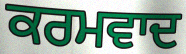
ਕਰਮਵਾਦ